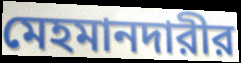
মেহমানদারীর